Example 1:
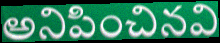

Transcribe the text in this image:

అనిపించినవి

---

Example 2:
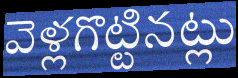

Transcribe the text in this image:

వెళ్లగొట్టినట్లు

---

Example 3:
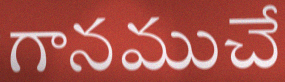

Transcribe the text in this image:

గానముచే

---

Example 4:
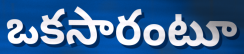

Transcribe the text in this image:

ఒకసారంటూ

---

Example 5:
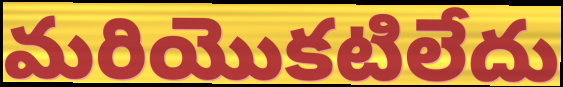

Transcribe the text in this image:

మరియొకటిలేదు